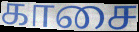
காசை